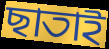
ছাতাই